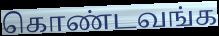
கொண்டவங்க